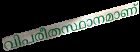
വിപരീതസ്ഥാനമാണ്